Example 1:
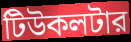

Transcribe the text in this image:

টিউকলটার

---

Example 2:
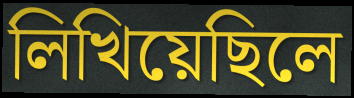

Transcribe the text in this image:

লিখিয়েছিলে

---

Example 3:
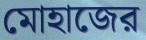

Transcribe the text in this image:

মোহাজের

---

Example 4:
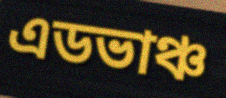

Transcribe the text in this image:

এডভাঞ্চ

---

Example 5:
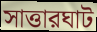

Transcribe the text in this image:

সাত্তারঘাট